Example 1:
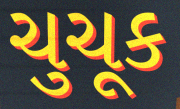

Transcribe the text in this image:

ચુચૂક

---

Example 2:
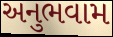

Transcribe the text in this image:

અનુભવામ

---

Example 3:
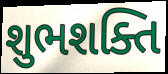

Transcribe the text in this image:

શુભશક્તિ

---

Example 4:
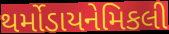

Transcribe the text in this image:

થર્મોડાયનેમિકલી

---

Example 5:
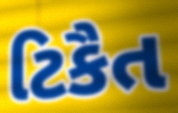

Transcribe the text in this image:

ટિકૈત